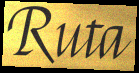
Ruta